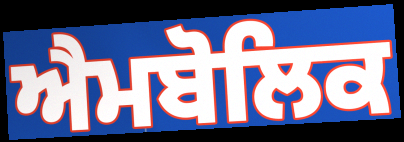
ਐਮਬੋਲਿਕ